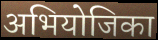
अभियोजिका